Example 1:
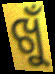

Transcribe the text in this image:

ଖୁଁ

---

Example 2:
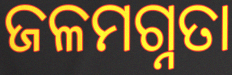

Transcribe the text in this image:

ଜଳମଗ୍ନତା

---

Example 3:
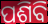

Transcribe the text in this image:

ପଶିବି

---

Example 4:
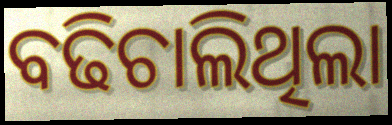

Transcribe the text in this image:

ବଢିଚାଲିଥିଲା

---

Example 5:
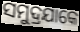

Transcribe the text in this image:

ସମୁଦ୍ରଯାକେ